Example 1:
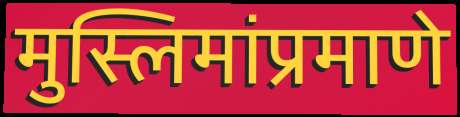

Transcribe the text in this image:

मुस्लिमांप्रमाणे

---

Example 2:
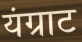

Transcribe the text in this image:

यंग्राट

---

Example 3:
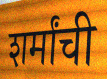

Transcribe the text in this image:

शर्मांची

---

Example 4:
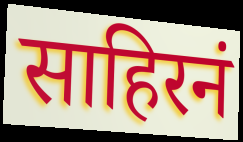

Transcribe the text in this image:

साहिरनं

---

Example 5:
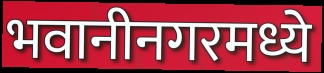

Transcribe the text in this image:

भवानीनगरमध्ये